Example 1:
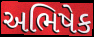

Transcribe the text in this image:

અભિષેક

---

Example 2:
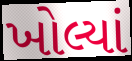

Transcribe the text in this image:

ખોલ્યાં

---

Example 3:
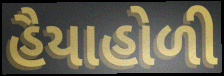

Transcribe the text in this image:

હૈયાહોળી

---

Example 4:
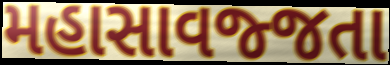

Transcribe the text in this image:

મહાસાવજ્જતા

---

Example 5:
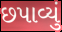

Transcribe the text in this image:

છપાવ્યું